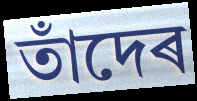
তাঁদেৰ